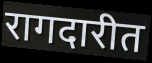
रागदारीत